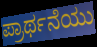
ಪ್ರಾರ್ಥನೆಯು